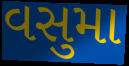
વસુમા